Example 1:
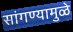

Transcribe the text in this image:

सांगण्यामुळे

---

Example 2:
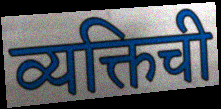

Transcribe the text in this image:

व्यक्तिची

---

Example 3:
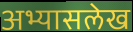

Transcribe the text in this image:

अभ्यासलेख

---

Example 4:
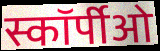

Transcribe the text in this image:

स्कॉर्पीओ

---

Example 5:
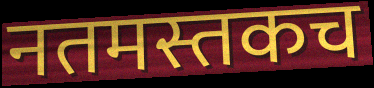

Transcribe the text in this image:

नतमस्तकच